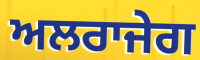
ਅਲਰਾਜੇਗ